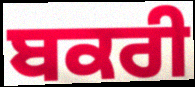
ਬਕਰੀ